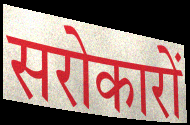
सरोकारों